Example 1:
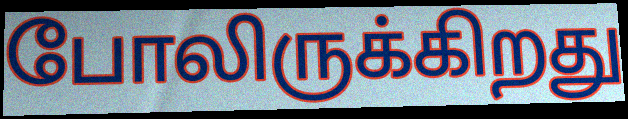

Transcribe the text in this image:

போலிருக்கிறது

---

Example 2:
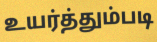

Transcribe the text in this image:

உயர்த்தும்படி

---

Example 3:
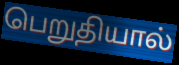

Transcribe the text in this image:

பெறுதியால்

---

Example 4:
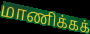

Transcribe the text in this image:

மாணிக்கக்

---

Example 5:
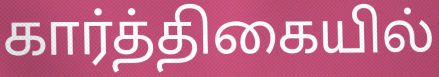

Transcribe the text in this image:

கார்த்திகையில்